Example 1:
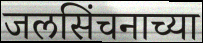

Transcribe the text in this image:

जलसिंचनाच्या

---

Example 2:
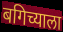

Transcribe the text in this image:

बगिच्याला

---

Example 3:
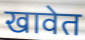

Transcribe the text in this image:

खावेत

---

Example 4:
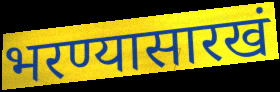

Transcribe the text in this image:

भरण्यासारखं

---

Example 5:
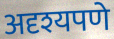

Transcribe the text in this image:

अदृश्यपणे